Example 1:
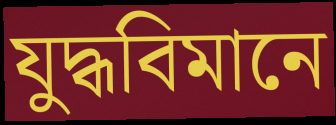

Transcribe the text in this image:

যুদ্ধবিমানে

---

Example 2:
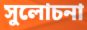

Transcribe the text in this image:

সুলোচনা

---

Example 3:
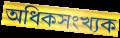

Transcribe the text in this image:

অধিকসংখ্যক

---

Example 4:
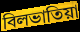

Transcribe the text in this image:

বিলভাতিয়া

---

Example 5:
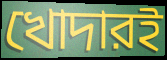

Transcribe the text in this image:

খোদারই